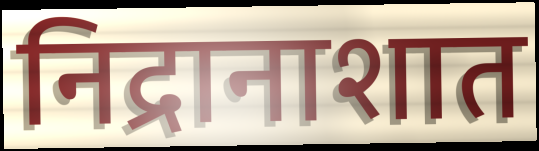
निद्रानाशात